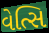
વેત્સિ